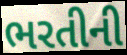
ભરતીની